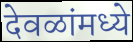
देवळांमध्ये